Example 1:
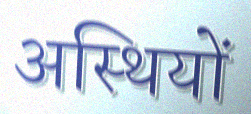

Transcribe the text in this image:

अस्थियों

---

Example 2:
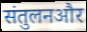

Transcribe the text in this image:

संतुलनऔर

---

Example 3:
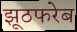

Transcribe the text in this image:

झूठफरेब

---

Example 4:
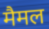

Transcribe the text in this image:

मैमल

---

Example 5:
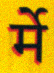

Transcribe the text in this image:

र्मे